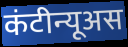
कंटीन्यूअस